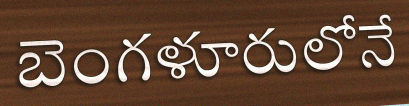
బెంగళూరులోనే